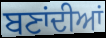
ਬਣਾਂਦੀਆਂ